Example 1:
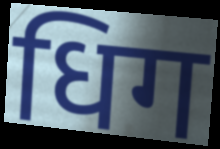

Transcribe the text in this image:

धिग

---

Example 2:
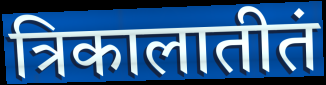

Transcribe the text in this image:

त्रिकालातीतं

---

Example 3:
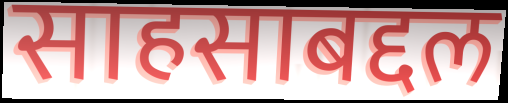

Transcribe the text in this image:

साहसाबद्दल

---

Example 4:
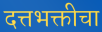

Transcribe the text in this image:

दत्तभक्तीचा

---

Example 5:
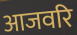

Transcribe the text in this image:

आजवरि